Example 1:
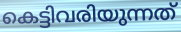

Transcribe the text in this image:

കെട്ടിവരിയുന്നത്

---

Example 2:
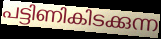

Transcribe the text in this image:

പട്ടിണികിടക്കുന്ന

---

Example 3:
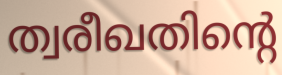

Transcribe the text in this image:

ത്വരീഖതിന്റെ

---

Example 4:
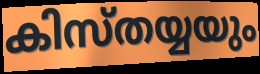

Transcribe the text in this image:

കിസ്തയ്യയും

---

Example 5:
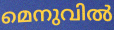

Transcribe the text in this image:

മെനുവിൽ